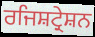
ਰਜਿਸ਼ਟ੍ਰੇਸ਼ਨ